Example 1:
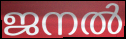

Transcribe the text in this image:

ജനൽ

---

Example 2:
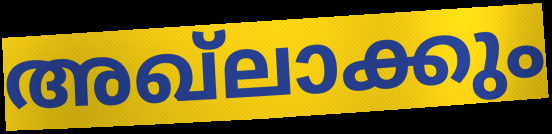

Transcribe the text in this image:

അഖ്ലാക്കും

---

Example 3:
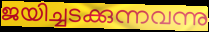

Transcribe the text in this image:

ജയിച്ചടക്കുന്നവന്നു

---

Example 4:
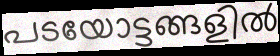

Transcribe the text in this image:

പടയോട്ടങ്ങളിൽ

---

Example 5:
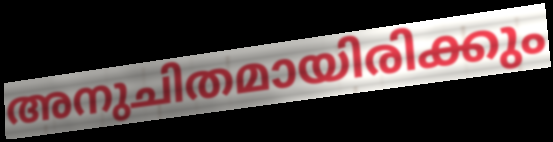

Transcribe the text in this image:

അനുചിതമായിരിക്കും